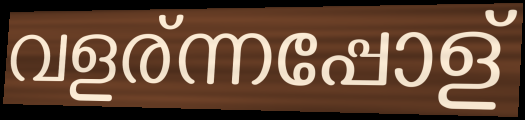
വളര്ന്നപ്പോള്